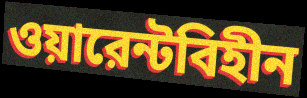
ওয়ারেন্টবিহীন